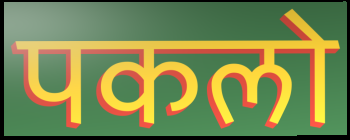
पकलो